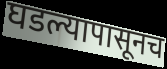
घडल्यापासूनच